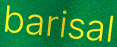
barisal